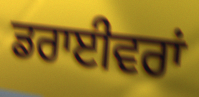
ਡਰਾਈਵਰਾਂ